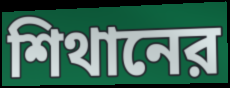
শিথানের